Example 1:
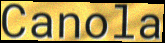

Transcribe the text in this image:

Canola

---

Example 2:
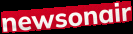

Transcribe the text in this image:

newsonair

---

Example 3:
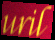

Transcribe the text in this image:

uril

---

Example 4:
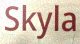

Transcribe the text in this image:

Skyla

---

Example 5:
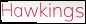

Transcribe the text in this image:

Hawkings